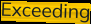
Exceeding